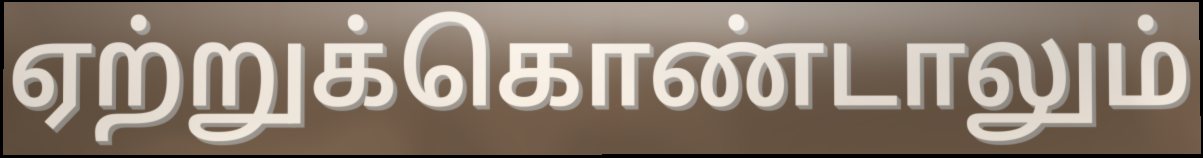
ஏற்றுக்கொண்டாலும்